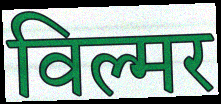
विल्मर